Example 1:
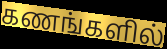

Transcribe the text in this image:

கணங்களில்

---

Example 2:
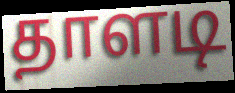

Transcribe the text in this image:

தாளடி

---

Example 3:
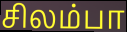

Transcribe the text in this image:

சிலம்பா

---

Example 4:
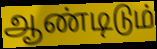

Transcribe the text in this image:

ஆண்டிடும்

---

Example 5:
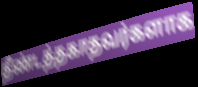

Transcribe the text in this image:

தீண்டத்தகாதவர்களாக